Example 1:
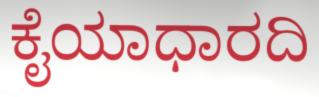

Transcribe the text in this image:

ಕೈಯಾಧಾರದಿ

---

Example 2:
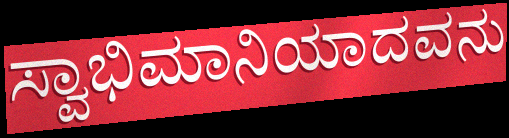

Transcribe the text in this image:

ಸ್ವಾಭಿಮಾನಿಯಾದವನು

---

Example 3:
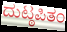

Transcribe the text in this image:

ದುಟ್ಠಪಿತಂ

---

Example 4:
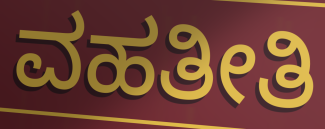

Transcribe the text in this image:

ವಹತೀತಿ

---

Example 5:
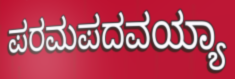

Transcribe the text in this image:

ಪರಮಪದವಯ್ಯಾ